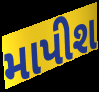
માપીશ